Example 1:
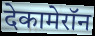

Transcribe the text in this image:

देकामेरॉन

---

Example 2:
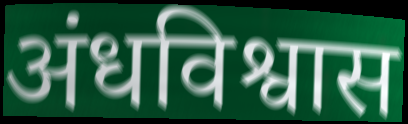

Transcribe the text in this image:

अंधविश्वास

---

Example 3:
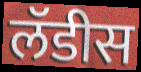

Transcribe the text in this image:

लॅडीस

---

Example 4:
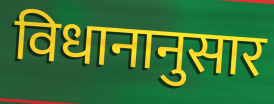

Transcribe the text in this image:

विधानानुसार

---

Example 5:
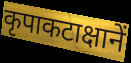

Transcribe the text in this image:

कृपाकटाक्षानें